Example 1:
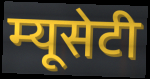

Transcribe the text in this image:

म्यूसेटी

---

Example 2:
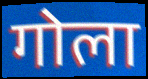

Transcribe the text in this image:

गोला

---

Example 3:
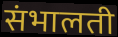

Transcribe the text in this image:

संभालती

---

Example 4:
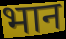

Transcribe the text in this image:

भान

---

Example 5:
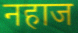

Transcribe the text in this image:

नहाज